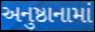
અનુષ્ઠાનામાં